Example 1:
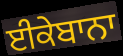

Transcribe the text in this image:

ਈਕੇਬਾਨਾ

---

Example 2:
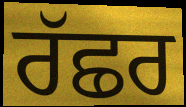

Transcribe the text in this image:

ਰੱਛਰ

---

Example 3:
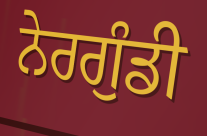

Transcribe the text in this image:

ਨੇਰਗੁੰਡੀ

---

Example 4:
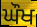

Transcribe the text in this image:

ਘੌਖ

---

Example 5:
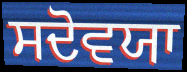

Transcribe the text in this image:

ਸਦੋਵਯਾ